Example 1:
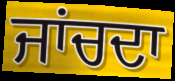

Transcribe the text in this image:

ਜਾਂਚਦਾ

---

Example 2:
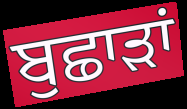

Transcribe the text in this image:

ਬੁਛਾੜਾਂ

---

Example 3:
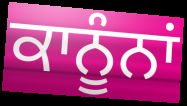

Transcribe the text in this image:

ਕਾਨੂੰਨਾਂ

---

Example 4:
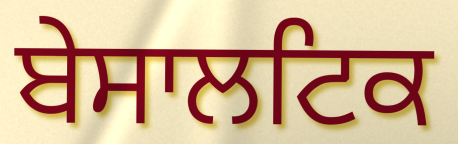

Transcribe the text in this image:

ਬੇਸਾਲਟਿਕ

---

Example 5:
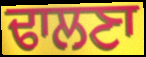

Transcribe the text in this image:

ਢਾਲਣਾ